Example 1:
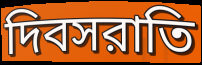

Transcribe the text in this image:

দিবসরাতি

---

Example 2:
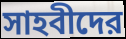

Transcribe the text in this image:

সাহবীদের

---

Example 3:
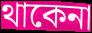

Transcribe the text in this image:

থাকেনা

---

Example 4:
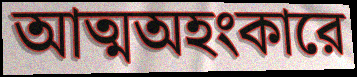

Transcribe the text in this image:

আত্মঅহংকারে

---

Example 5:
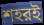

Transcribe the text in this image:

শহরই